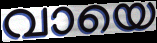
വായെ